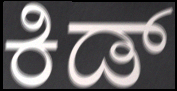
ಕಿಡ್